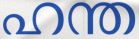
ഹന്ത